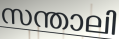
സന്താലി